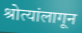
श्रोत्यांलागून